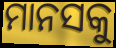
ମାନସକୁ